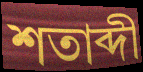
শতাব্দী